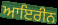
ਆਇਰੀਨ